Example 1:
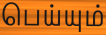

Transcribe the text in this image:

பெய்யும்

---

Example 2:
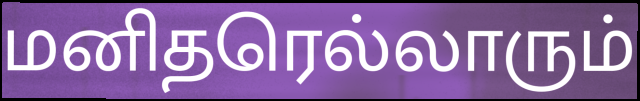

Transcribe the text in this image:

மனிதரெல்லாரும்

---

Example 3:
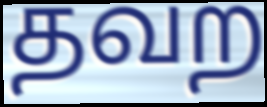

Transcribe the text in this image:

தவற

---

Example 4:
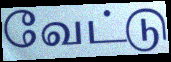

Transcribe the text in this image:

வேட்டு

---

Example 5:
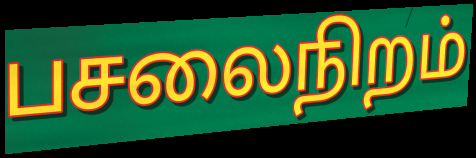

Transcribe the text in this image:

பசலைநிறம்